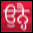
ਉਨ੍ਹੈ